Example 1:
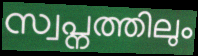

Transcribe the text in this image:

സ്വപ്നത്തിലും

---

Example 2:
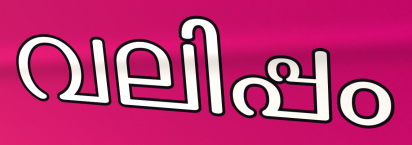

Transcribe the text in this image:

വലിപ്പം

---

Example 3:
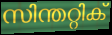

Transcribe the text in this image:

സിന്തറ്റിക്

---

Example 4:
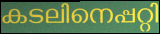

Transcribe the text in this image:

കടലിനെപ്പറ്റി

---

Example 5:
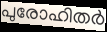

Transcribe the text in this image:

പുരോഹിതർ